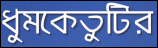
ধুমকেতুটির